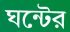
ঘন্টের